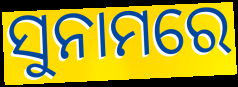
ସୁନାମରେ